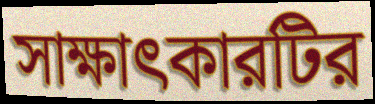
সাক্ষাৎকারটির